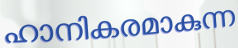
ഹാനികരമാകുന്ന